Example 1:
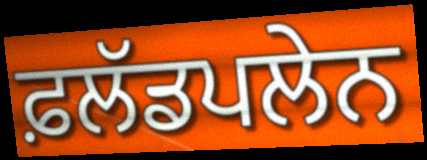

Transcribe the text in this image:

ਫ਼ਲੱਡਪਲੇਨ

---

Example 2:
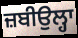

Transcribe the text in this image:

ਜ਼ਬੀਉਲ੍ਹਾ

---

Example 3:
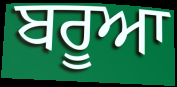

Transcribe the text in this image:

ਬਰੂਆ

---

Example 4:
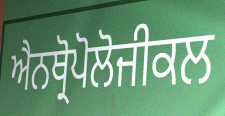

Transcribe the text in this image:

ਐਨਥ੍ਰੋਪੋਲੋਜੀਕਲ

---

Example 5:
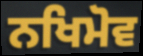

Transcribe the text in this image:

ਨਖਿਮੋਵ